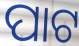
ପାଟ